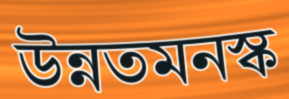
উন্নতমনস্ক